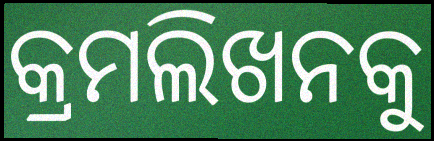
କ୍ରମଲିଖନକୁ